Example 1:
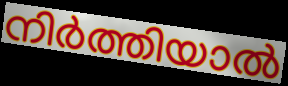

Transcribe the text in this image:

നിർത്തിയാൽ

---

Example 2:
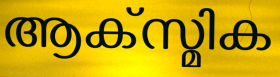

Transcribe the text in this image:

ആക്സ്മിക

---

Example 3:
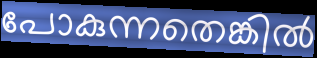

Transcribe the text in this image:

പോകുന്നതെങ്കിൽ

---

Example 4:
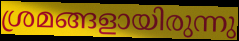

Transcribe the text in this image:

ശ്രമങ്ങളായിരുന്നു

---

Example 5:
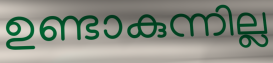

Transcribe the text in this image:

ഉണ്ടാകുന്നില്ല